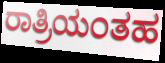
ರಾತ್ರಿಯಂತಹ